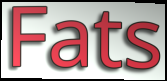
Fats